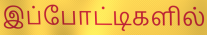
இப்போட்டிகளில்